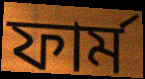
ফাৰ্ম